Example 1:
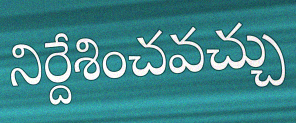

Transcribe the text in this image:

నిర్దేశించవచ్చు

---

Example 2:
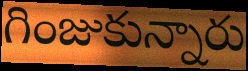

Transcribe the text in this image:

గింజుకున్నారు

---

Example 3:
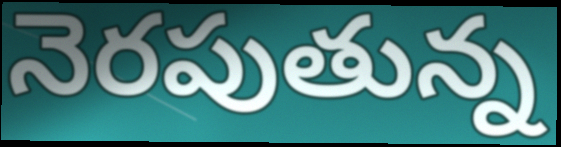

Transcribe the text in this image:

నెరపుతున్న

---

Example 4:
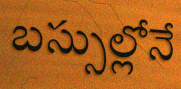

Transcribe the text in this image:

బస్సుల్లోనే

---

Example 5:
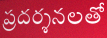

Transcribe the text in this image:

ప్రదర్శనలతో